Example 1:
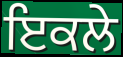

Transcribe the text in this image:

ਇਕਲੇ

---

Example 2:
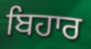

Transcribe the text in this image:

ਬਿਹਾਰ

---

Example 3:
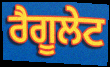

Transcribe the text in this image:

ਰੈਗੂਲੇਟ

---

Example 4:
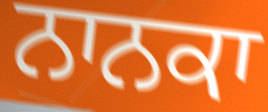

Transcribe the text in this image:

ਨਾਨਕਾ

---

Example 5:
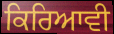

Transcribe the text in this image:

ਕਿਰਿਆਵੀ